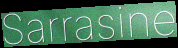
Sarrasine